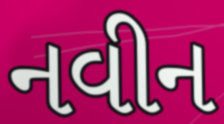
નવીન